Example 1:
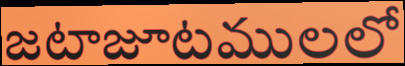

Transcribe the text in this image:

జటాజూటములలో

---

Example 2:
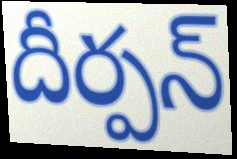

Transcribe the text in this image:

దీర్పన్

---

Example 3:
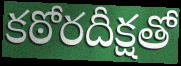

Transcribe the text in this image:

కఠోరదీక్షతో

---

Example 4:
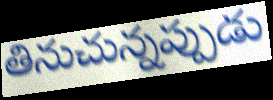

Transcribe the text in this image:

తినుచున్నప్పుడు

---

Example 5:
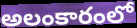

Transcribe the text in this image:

అలంకారంలో